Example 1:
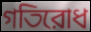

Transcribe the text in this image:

গতিরোধ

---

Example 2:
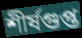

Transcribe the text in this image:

শীর্ষগুপ্ত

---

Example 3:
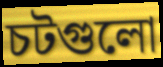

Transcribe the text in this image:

চটগুলো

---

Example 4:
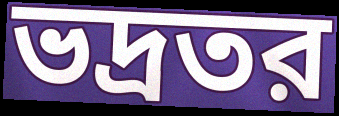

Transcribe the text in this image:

ভদ্রতর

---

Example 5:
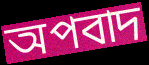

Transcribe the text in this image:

অপবাদ